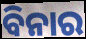
ବିନାର